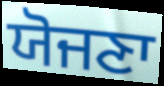
ਯੋਜਣਾ